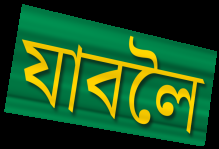
যাবলৈ